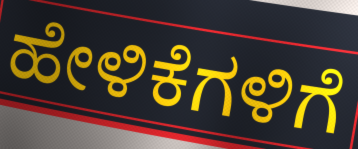
ಹೇಳಿಕೆಗಳಿಗೆ